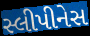
સ્લીપીનેસ